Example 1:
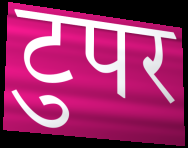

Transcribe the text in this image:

टुपर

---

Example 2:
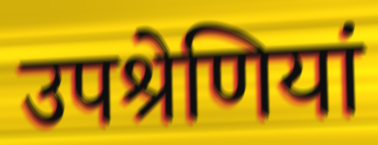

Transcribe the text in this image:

उपश्रेणियां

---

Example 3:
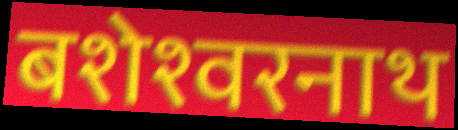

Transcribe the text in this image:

बशेश्वरनाथ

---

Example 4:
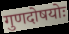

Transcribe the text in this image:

गुणदोषयोः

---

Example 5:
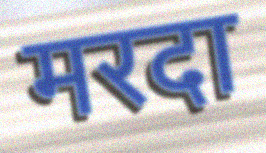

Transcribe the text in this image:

मरदा